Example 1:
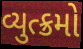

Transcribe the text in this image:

વ્યુત્ક્રમો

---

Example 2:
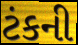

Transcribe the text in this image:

ટંકની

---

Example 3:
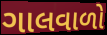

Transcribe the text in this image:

ગાલવાળો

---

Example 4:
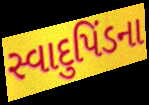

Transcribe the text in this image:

સ્વાદુપિંડના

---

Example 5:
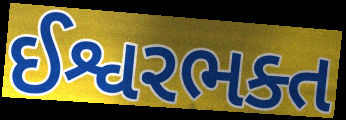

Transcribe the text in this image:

ઈશ્વરભક્ત